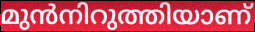
മുൻനിറുത്തിയാണ്